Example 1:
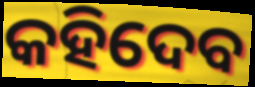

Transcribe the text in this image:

କହିଦେବ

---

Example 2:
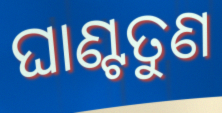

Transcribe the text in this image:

ଘାଣ୍ଟତୁଣ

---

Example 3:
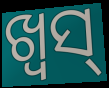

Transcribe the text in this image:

ଖ୍ୱସ୍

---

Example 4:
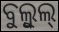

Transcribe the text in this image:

ବୁଲ୍ବୁଲ୍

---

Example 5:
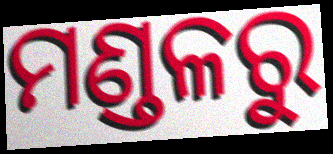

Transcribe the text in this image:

ମଣ୍ଡଳରୁ